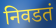
निवडतं